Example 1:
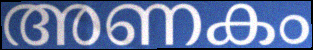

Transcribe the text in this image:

അണകം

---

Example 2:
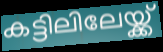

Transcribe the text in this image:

കട്ടിലിലേയ്ക്ക്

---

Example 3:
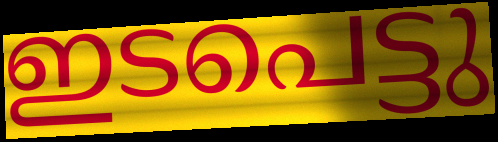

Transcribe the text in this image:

ഇടപെട്ടു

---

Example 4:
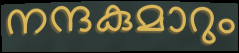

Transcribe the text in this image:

നന്ദകുമാറും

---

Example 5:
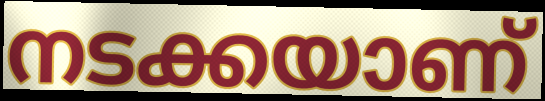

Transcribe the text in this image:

നടക്കയാണ്